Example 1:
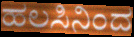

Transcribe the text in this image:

ಹಲಸಿನಿಂದ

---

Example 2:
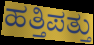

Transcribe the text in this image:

ಹತ್ತಿಪತ್ತು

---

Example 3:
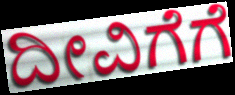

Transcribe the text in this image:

ದೀವಿಗೆಗೆ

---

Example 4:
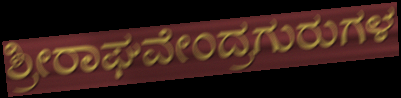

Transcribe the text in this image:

ಶ್ರೀರಾಘವೇಂದ್ರಗುರುಗಳ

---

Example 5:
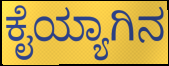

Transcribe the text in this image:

ಕೈಯ್ಯಾಗಿನ